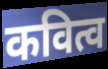
कवित्व